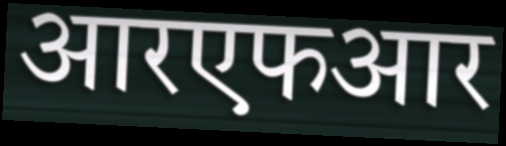
आरएफआर